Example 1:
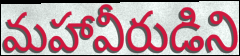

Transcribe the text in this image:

మహావీరుడిని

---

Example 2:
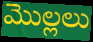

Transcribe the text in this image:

మొల్లలు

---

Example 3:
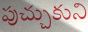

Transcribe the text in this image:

పుచ్చుకుని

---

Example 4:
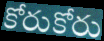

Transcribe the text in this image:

కోరుకోరు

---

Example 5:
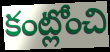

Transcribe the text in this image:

కంట్లోంచి